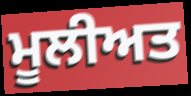
ਮੂਲੀਅਤ